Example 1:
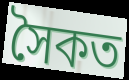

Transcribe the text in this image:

সৈকত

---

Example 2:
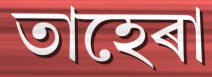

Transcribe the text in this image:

তাহেৰা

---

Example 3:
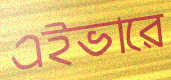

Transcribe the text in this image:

এইভাৱে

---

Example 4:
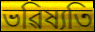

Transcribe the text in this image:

ভৱিষ্যতি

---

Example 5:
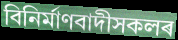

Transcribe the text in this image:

বিনিৰ্মাণবাদীসকলৰ